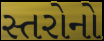
સ્તરોનો